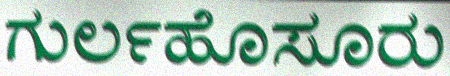
ಗುರ್ಲಹೊಸೂರು